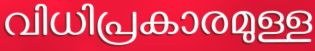
വിധിപ്രകാരമുള്ള